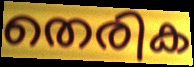
തെരിക